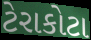
ટેરાકોટા